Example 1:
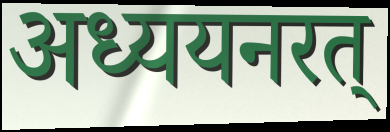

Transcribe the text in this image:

अध्ययनरत्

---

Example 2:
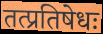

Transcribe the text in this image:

तत्प्रतिषेधः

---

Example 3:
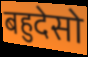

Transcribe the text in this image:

बहुदेसो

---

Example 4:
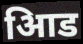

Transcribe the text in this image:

आिड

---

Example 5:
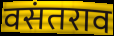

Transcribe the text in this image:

वसंतराव